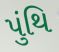
પુંથિ